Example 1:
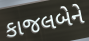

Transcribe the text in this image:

કાજલબેને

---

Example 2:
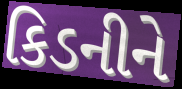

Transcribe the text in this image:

કિડનીને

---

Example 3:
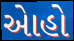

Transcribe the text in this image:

એાહો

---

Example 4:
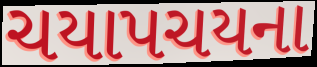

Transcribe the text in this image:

ચયાપચયના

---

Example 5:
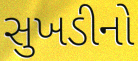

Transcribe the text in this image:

સુખડીનો